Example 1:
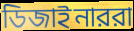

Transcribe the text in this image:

ডিজাইনাররা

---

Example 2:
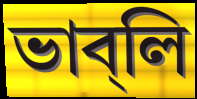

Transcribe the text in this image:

ভাব্‌লি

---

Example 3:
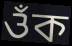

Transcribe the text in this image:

ওঁক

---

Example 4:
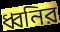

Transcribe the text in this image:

ধ্বনির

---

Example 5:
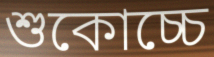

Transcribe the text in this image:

শুকোচ্চে